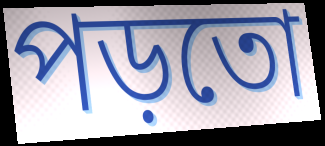
পড়তো